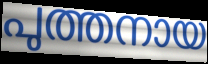
പുത്തനായ